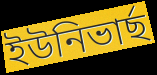
ইউনিভাৰ্ছ